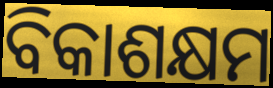
ବିକାଶକ୍ଷମ